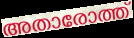
അതാരോത്ത്